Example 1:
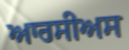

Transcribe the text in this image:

ਆਰਸੀਅਸ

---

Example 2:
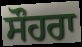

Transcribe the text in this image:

ਸੌਹਰਾ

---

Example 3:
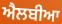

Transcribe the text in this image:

ਐਲਬੀਆ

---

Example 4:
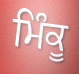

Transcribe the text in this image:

ਮਿੰਕੂ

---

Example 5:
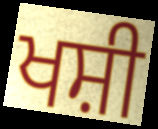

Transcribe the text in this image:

ਖਸ਼ੀ